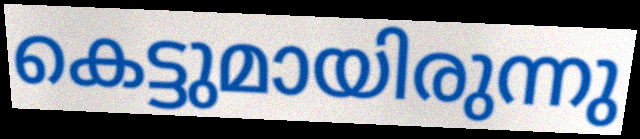
കെട്ടുമായിരുന്നു